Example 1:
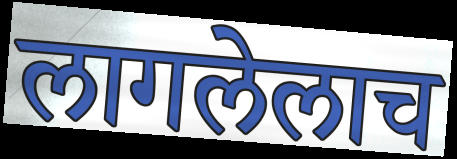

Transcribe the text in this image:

लागलेलाच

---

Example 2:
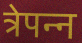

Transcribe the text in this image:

त्रेपन्न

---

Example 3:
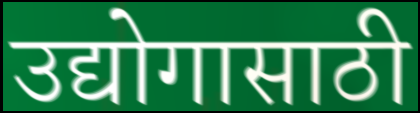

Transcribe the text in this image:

उद्योगासाठी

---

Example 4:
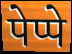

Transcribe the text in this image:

पेप्पे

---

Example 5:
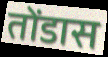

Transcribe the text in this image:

तोंडास